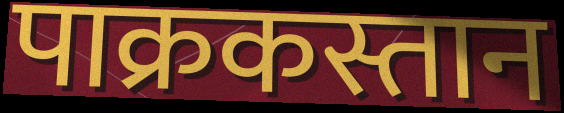
पाक्रकस्तान